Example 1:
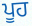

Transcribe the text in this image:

ਪੂਹ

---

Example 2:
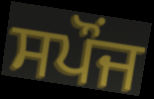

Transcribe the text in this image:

ਸਪੌਂਜ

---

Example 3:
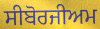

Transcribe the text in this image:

ਸੀਬੋਰਜੀਅਮ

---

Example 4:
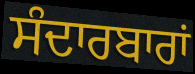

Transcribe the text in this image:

ਸੰਦਾਰਬਾਰਾਂ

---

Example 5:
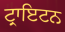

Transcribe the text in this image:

ਟ੍ਰਾਇਟਨ